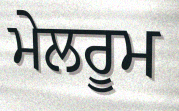
ਮੇਲਰੂਮ